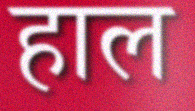
हाल